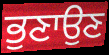
ਭੁਣਾਉਣ